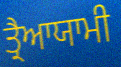
ਤ੍ਰੈਆਯਾਮੀ